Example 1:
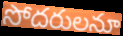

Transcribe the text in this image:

సోదరులనూ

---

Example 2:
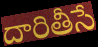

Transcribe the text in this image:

దారితీసే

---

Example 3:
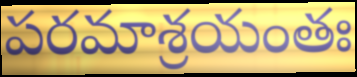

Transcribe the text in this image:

పరమాశ్రయంతః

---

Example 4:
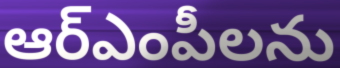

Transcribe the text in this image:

ఆర్ఎంపీలను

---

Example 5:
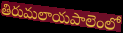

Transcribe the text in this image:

తిరుమలాయపాలెంలో